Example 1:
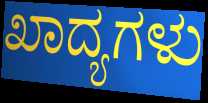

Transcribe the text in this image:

ಖಾದ್ಯಗಳು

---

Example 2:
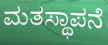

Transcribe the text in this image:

ಮತಸ್ಥಾಪನೆ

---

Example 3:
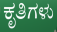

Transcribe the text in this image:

ಕೃತಿಗಳು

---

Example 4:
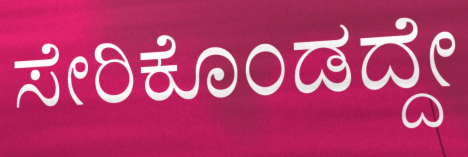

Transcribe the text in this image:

ಸೇರಿಕೊಂಡದ್ದೇ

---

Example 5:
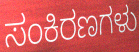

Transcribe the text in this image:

ಸಂಕಿರಣಗಳು